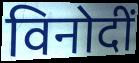
विनोदीं